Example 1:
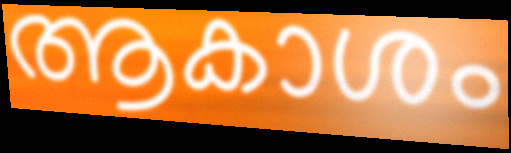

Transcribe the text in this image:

ആകാശം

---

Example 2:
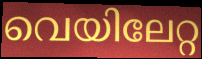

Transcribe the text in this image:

വെയിലേറ്റ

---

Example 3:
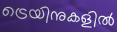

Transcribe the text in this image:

ട്രെയിനുകളിൽ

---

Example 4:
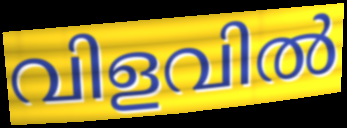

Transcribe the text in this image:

വിളവിൽ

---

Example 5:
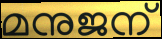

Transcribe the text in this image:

മനുജന്